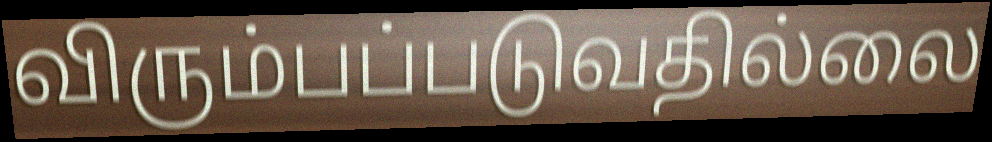
விரும்பப்படுவதில்லை